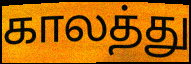
காலத்து